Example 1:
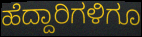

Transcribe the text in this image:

ಹೆದ್ದಾರಿಗಳಿಗೂ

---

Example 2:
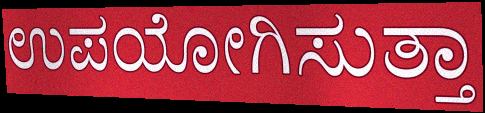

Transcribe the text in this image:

ಉಪಯೋಗಿಸುತ್ತಾ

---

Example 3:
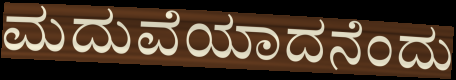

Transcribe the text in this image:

ಮದುವೆಯಾದನೆಂದು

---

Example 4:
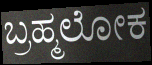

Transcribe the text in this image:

ಬ್ರಹ್ಮಲೋಕ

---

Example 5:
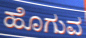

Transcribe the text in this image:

ಹೊಗುವ